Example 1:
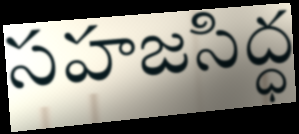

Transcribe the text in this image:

సహజసిద్ధ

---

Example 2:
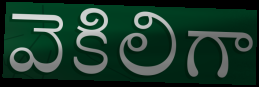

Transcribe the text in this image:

వెకిలిగా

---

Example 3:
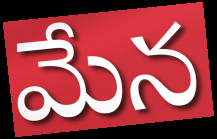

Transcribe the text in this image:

మేన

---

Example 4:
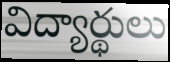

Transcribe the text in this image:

విద్యార్థులు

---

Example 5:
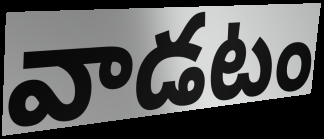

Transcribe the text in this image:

వాడటం